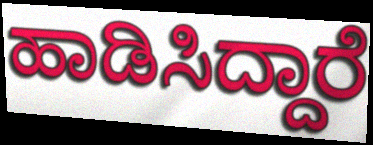
ಹಾಡಿಸಿದ್ದಾರೆ